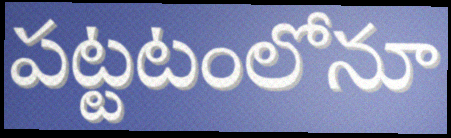
పట్టటంలోనూ